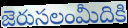
జెరుసలంమీదికి